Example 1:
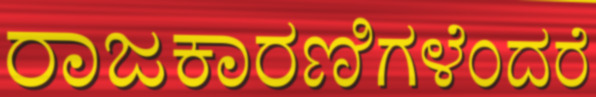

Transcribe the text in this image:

ರಾಜಕಾರಣಿಗಳೆಂದರೆ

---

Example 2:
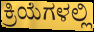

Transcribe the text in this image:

ಕ್ರಿಯೆಗಳಲ್ಲಿ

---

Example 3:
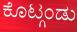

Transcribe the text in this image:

ಕೊಟ್ಗಂಡು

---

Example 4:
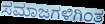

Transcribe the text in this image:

ಸಮಾಜಗಳಿಗಿಂತ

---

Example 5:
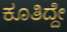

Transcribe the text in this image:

ಕೂತಿದ್ದೇ